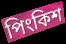
পিংকিশ